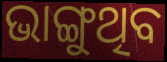
ଭାଙ୍ଗୁଥିବ